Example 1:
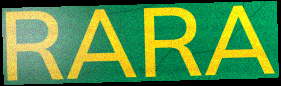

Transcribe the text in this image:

RARA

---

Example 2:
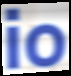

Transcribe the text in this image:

io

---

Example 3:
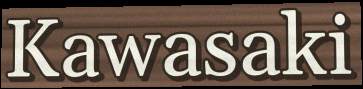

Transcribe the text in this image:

Kawasaki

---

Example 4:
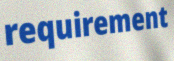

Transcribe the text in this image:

requirement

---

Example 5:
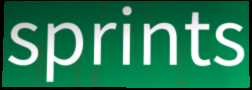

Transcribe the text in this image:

sprints